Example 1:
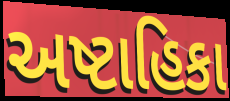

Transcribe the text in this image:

અષ્ટાહિકા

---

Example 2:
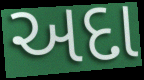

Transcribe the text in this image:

અદા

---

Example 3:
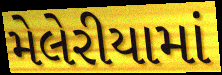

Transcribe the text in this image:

મેલેરીયામાં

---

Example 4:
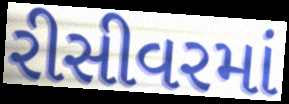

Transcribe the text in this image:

રીસીવરમાં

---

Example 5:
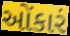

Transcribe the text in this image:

ઓંકારં